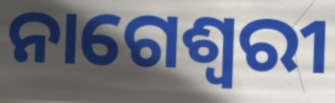
ନାଗେଶ୍ୱରୀ